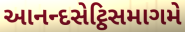
આનન્દસેટ્ઠિસમાગમે